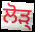
ਲੋੜ੍